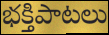
భక్తిపాటలు